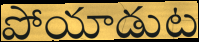
పోయాడుట